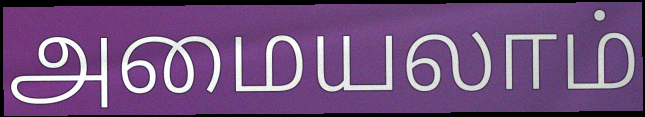
அமையலாம்